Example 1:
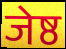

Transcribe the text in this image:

जेष्ठ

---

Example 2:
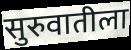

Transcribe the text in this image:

सुरुवातीला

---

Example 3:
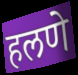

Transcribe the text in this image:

हलणे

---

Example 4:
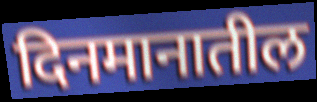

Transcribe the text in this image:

दिनमानातील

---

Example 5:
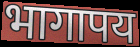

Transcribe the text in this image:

भागापय